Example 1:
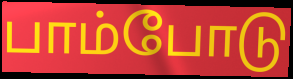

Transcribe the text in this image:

பாம்போடு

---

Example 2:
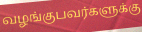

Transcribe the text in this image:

வழங்குபவர்களுக்கு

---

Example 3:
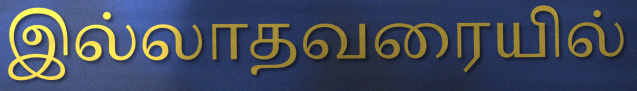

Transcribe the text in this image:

இல்லாதவரையில்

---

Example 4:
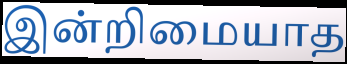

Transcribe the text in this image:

இன்றிமையாத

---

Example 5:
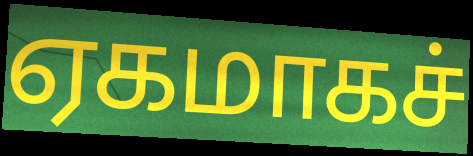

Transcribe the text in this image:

ஏகமாகச்